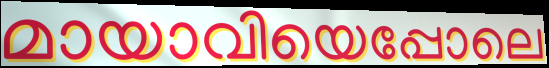
മായാവിയെപ്പോലെ